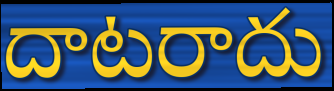
దాటరాదు